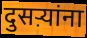
दुसऱ्‍यांना